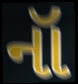
નૉ